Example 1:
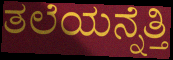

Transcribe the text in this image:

ತಲೆಯನ್ನೆತ್ತಿ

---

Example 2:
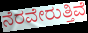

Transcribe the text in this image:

ನೆರವೇರುತ್ತಿವೆ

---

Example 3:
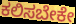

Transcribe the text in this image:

ಕಲಿಸಬೇಕೇ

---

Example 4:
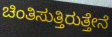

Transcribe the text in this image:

ಚಿಂತಿಸುತ್ತಿರುತ್ತೇನೆ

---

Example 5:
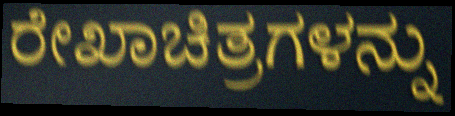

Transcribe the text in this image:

ರೇಖಾಚಿತ್ರಗಳನ್ನು